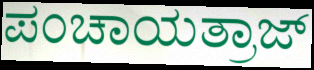
ಪಂಚಾಯತ್ರಾಜ್